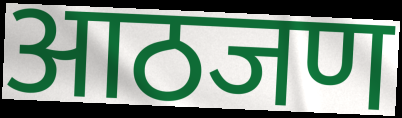
आठजण